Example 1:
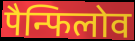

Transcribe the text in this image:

पैन्फिलोव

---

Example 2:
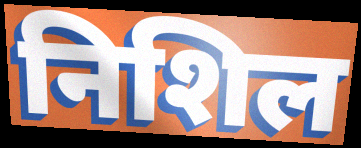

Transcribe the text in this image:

निशिल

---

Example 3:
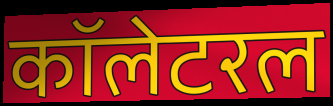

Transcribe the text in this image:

कॉलेटरल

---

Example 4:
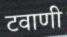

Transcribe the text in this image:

टवाणी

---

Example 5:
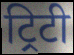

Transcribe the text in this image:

ट्रिटी